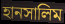
হানসালিম